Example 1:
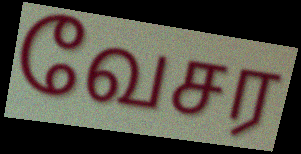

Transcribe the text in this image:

வேசர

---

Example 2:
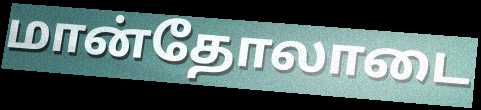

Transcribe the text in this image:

மான்தோலாடை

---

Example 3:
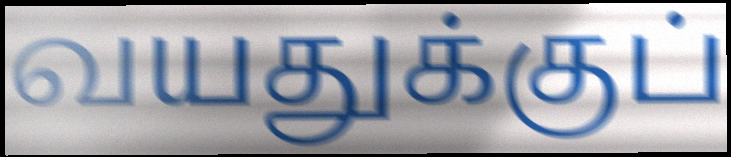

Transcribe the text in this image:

வயதுக்குப்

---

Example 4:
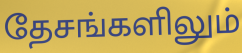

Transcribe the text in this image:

தேசங்களிலும்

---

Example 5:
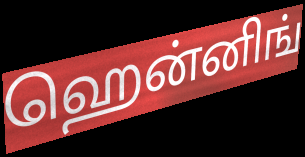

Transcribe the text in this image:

ஹென்னிங்